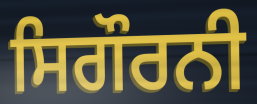
ਸਿਗੌਰਨੀ